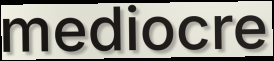
mediocre